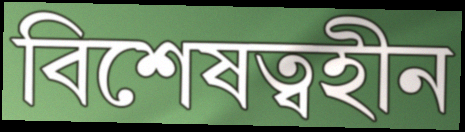
বিশেষত্বহীন